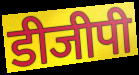
डीजीपी